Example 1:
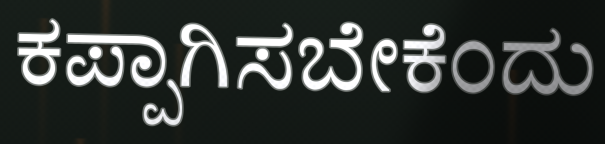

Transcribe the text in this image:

ಕಪ್ಪಾಗಿಸಬೇಕೆಂದು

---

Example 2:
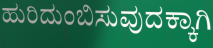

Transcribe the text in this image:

ಹುರಿದುಂಬಿಸುವುದಕ್ಕಾಗಿ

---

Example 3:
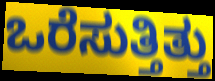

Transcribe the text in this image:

ಒರೆಸುತ್ತಿತ್ತು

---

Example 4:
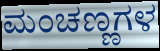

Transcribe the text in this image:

ಮಂಚಣ್ಣಗಳ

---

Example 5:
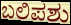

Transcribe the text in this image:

ಬಲಿಪಶು